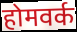
होमवर्क